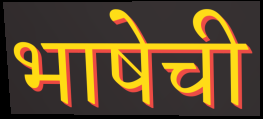
भाषेची